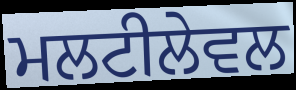
ਮਲਟੀਲੇਵਲ